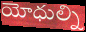
యోధుల్ని